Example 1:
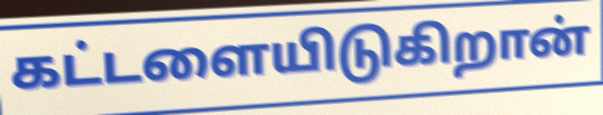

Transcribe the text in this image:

கட்டளையிடுகிறான்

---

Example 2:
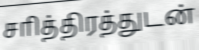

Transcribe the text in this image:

சரித்திரத்துடன்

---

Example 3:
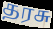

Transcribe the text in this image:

தரசு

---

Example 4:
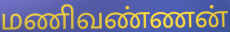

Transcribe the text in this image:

மணிவண்ணன்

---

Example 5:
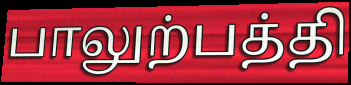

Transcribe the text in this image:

பாலுற்பத்தி